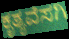
ಕೃತ್ಯವೆಸಗಿ